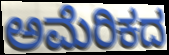
ಅಮೆರಿಕದ